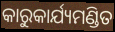
କାରୁକାର୍ଯ୍ୟମଣ୍ଡିତ